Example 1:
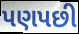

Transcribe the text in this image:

પણપછી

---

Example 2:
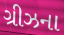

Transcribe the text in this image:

ગ્રીઝના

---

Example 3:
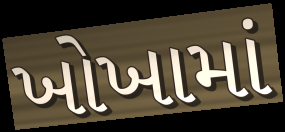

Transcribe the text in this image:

ખોખામાં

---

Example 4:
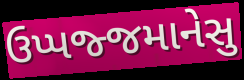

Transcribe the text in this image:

ઉપ્પજ્જમાનેસુ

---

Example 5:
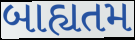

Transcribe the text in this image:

બાહ્યતમ